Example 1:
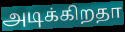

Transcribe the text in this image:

அடிக்கிறதா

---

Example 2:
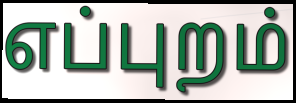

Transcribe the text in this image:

எப்புறம்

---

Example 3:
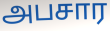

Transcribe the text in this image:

அபசார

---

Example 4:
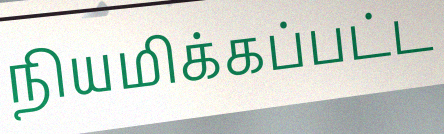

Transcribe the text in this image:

நியமிக்கப்பட்ட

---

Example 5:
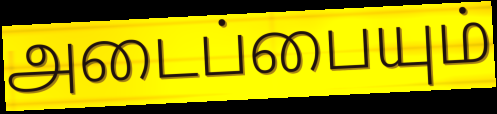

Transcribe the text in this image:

அடைப்பையும்